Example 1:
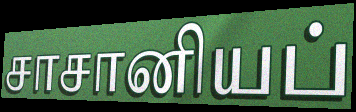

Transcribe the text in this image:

சாசானியப்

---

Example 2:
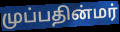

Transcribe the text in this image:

முப்பதின்மர்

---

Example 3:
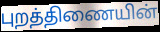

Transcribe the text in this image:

புறத்திணையின்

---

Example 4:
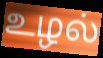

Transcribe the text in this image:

உழல்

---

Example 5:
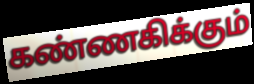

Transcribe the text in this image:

கண்ணகிக்கும்